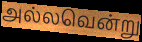
அல்லவென்று